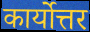
कार्योत्तर